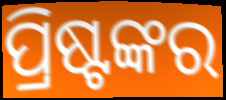
ପ୍ରିଷ୍ଟଙ୍କର